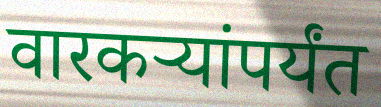
वारकऱ्यांपर्यंत